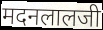
मदनलालजी